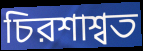
চিরশাশ্বত